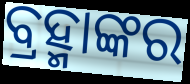
ବ୍ରହ୍ମାଙ୍କର